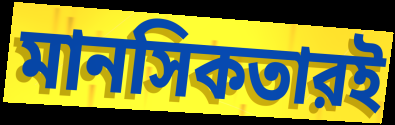
মানসিকতারই